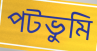
পটভুমি